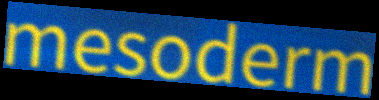
mesoderm